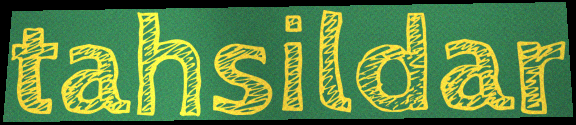
tahsildar